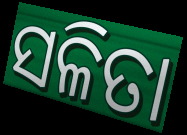
ସଳିତା